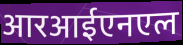
आरआईएनएल